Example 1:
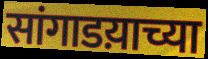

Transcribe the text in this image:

सांगाडय़ाच्या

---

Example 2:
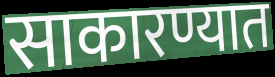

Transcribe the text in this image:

साकारण्यात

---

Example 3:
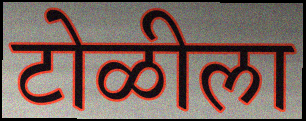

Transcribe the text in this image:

टोळीला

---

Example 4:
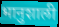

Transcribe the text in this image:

भानुशाली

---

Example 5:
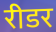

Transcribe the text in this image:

रीडर